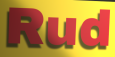
Rud